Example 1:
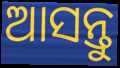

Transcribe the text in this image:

ଆସନ୍ତୁ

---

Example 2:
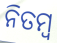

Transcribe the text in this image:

ନିତମ୍ୱ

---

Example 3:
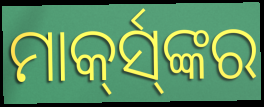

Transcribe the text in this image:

ମାର୍କ୍‍ସ୍‍ଙ୍କର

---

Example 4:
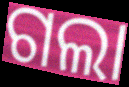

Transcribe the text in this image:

ଗଲା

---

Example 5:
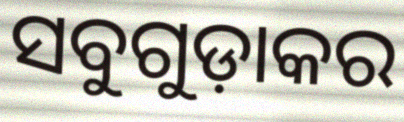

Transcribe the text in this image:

ସବୁଗୁଡ଼ାକର